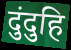
दुंदुहि